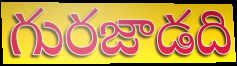
గురజాడది